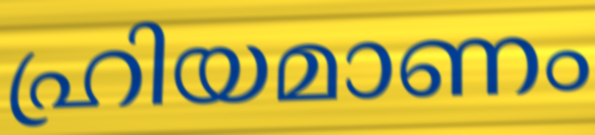
ഹ്രിയമാണം